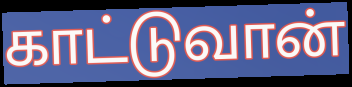
காட்டுவான்